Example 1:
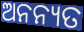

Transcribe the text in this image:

ଅନନ୍ୟତ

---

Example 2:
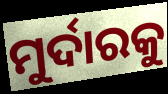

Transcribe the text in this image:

ମୁର୍ଦାରକୁ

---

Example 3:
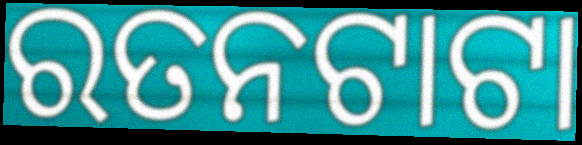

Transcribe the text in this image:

ରତନଟାଟା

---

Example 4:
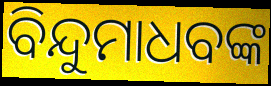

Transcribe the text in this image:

ବିନ୍ଦୁମାଧବଙ୍କ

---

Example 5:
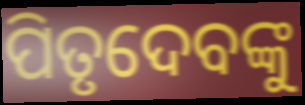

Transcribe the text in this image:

ପିତୃଦେବଙ୍କୁ